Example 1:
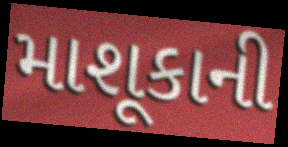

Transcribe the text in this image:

માશૂકાની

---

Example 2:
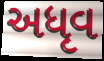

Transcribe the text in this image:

અધૃવ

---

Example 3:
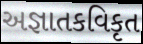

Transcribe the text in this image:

અજ્ઞાતકવિકૃત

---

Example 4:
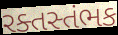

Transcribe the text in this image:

રક્તસ્તંભક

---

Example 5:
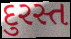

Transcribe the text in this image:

દુરસ્ત